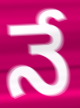
నే